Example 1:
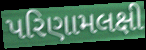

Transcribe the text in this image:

પરિણામલક્ષી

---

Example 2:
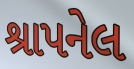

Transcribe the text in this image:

શ્રાપનેલ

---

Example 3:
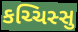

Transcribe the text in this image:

કચ્ચિસ્સુ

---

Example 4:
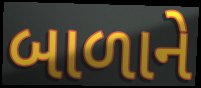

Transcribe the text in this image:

બાળાને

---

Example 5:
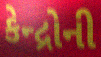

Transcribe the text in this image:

કેન્દ્રોની